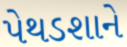
પેથડશાને